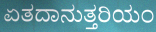
ಏತದಾನುತ್ತರಿಯಂ